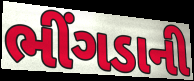
ભીંગડાની